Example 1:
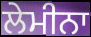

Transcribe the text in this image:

ਲੇਮੀਨਾ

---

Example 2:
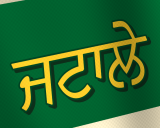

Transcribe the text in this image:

ਜਟਾਲੇ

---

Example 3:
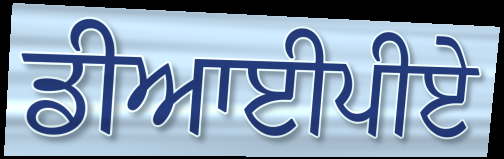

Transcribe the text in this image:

ਡੀਆਈਪੀਏ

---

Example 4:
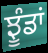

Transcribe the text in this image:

ਝੂੰਡਾਂ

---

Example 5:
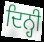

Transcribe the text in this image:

ਦਿਨ੍ਹੀ